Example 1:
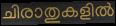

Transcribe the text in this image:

ചിരാതുകളിൽ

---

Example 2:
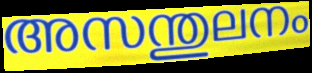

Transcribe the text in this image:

അസന്തുലനം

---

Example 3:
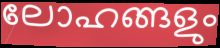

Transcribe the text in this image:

ലോഹങ്ങളും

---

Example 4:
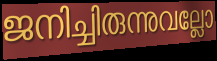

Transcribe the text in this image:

ജനിച്ചിരുന്നുവല്ലോ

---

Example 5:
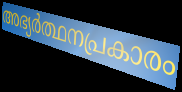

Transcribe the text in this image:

അഭ്യർത്ഥനപ്രകാരം